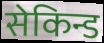
सेकिन्ड